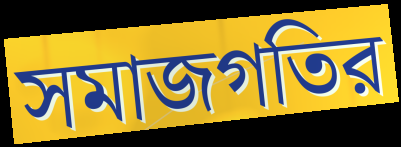
সমাজগতির